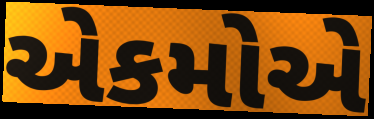
એકમોએ